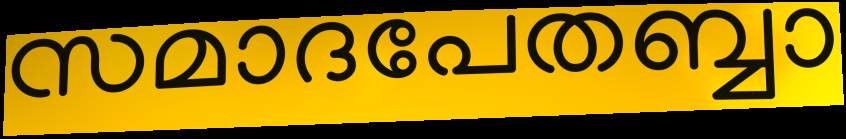
സമാദപേതബ്ബാ